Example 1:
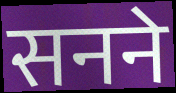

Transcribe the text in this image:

सनने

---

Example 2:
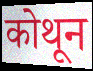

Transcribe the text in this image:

कोथून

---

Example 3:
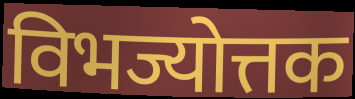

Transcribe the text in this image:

विभज्योत्तक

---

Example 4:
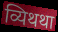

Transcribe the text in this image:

व्यिथथा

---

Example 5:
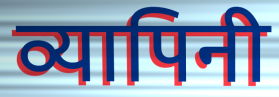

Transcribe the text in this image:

व्यापिनी